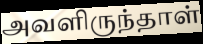
அவளிருந்தாள்